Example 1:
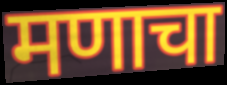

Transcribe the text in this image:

मणाचा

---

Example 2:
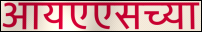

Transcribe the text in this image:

आयएएसच्या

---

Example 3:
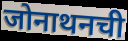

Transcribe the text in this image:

जोनाथनची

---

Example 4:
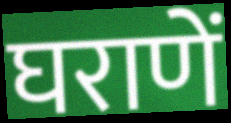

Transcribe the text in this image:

घराणें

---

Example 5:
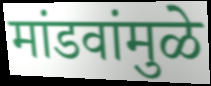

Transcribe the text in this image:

मांडवांमुळे